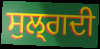
ਸੁਲ੍ਗਦੀ